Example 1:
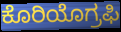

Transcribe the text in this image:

ಕೊರಿಯೊಗ್ರಫಿ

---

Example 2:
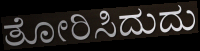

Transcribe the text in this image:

ತೋರಿಸಿದುದು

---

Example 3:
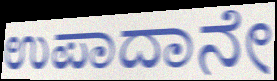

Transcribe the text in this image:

ಉಪಾದಾನೇ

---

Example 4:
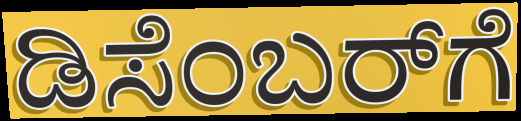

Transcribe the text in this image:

ಡಿಸೆಂಬರ್‌ಗೆ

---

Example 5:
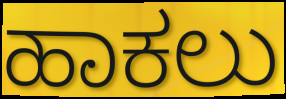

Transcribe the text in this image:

ಹಾಕಲು